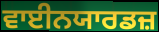
ਵਾਈਨਯਾਰਡਜ਼